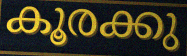
കൂരക്കു